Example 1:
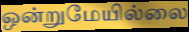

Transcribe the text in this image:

ஒன்றுமேயில்லை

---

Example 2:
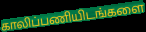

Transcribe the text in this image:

காலிப்பணியிடங்களை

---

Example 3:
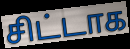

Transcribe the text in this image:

சிட்டாக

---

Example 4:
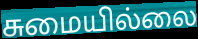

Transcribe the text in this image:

சுமையில்லை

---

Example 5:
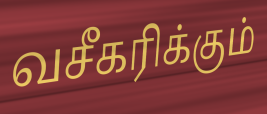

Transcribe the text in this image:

வசீகரிக்கும்